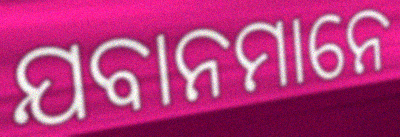
ଯବାନମାନେ